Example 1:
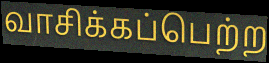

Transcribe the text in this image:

வாசிக்கப்பெற்ற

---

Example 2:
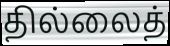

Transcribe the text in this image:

தில்லைத்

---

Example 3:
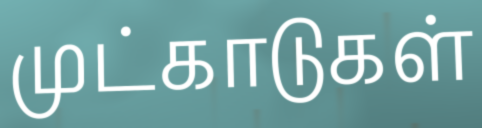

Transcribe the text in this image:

முட்காடுகள்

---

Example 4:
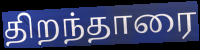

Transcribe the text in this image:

திறந்தாரை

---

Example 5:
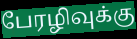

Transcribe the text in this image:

பேரழிவுக்கு